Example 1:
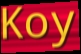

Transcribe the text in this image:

Koy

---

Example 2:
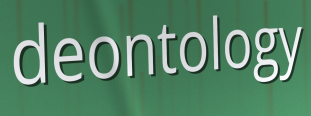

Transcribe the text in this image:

deontology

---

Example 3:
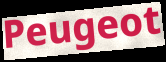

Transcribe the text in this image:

Peugeot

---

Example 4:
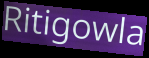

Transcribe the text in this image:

Ritigowla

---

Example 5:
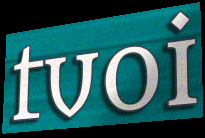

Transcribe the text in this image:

tuoi